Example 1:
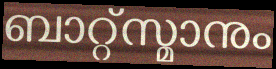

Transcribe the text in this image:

ബാറ്റ്സ്മാനും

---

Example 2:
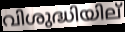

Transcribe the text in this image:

വിശുദ്ധിയില്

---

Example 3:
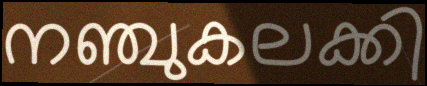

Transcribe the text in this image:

നഞ്ചുകലക്കി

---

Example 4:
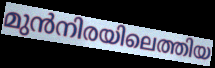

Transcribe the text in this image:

മുൻനിരയിലെത്തിയ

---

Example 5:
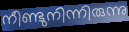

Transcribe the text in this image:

നീണ്ടുനിന്നിരുന്നു